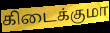
கிடைக்குமா